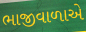
ભાજીવાળાએ